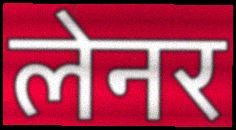
लेनर